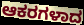
ಆಕರಗಳಾದ